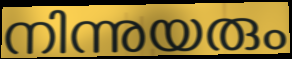
നിന്നുയരും